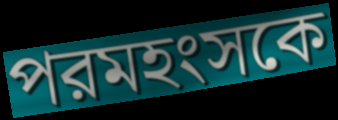
পরমহংসকে